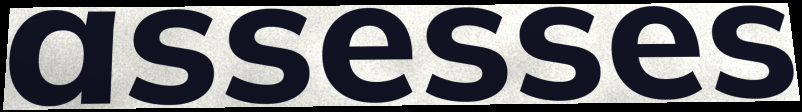
assesses